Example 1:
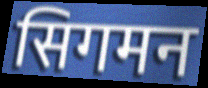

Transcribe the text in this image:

सिगमन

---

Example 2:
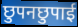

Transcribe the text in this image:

छुपनछुपाई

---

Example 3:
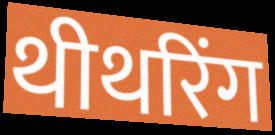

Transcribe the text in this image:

थीथरिंग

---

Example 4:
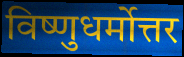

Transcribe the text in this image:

विष्णुधर्मोत्तर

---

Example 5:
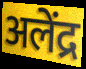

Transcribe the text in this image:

अलेंद्र